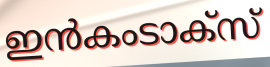
ഇൻകംടാക്സ്